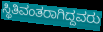
ಸ್ಥಿತಿವಂತರಾಗಿದ್ದವರು